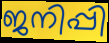
ജനിപ്പി